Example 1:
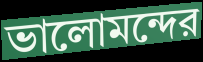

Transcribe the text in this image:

ভালোমন্দের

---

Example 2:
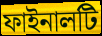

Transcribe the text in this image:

ফাইনালটি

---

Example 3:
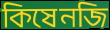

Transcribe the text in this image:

কিষেনজি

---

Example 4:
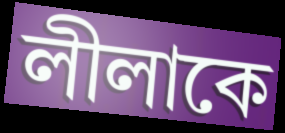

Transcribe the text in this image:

লীলাকে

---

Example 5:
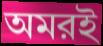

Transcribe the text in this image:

অমরই